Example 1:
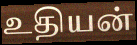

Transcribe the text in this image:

உதியன்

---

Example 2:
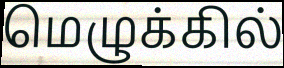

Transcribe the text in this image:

மெழுக்கில்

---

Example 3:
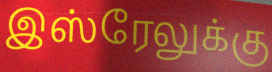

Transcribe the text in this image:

இஸ்ரேலுக்கு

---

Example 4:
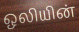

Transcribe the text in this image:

ஒலியின்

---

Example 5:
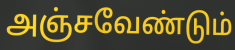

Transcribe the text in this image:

அஞ்சவேண்டும்